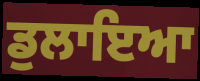
ਡੁਲਾਇਆ